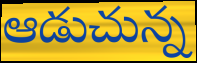
ఆడుచున్న